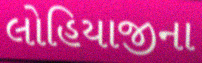
લોહિયાજીના